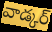
వాడ్కర్